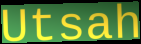
Utsah